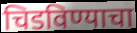
चिडविण्याचा